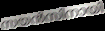
സയൻസിനായി